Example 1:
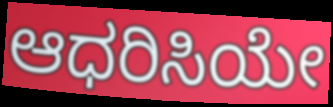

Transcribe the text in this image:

ಆಧರಿಸಿಯೇ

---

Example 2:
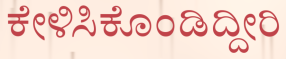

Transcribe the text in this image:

ಕೇಳಿಸಿಕೊಂಡಿದ್ದೀರಿ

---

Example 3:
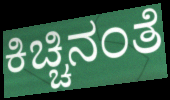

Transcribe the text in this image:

ಕಿಚ್ಚಿನಂತೆ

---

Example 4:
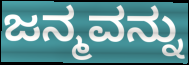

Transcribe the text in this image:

ಜನ್ಮವನ್ನು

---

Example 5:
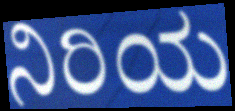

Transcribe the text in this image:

ನಿರಿಯ